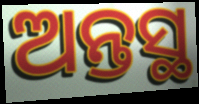
ଅନ୍ତସ୍ଥ